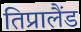
तिप्रालैंड